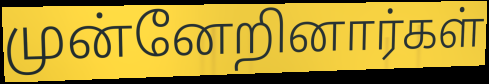
முன்னேறினார்கள்